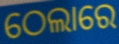
ଠେଲାରେ